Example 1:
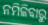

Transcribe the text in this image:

ନମିଳିବାରୁ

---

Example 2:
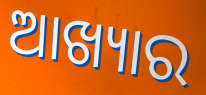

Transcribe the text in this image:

ଆଖ୍ୟାର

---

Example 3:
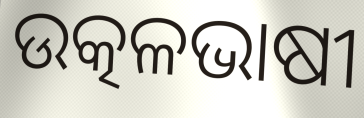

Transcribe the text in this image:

ଉତ୍କଳଭାଷୀ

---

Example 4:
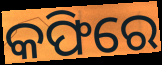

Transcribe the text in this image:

କଫିରେ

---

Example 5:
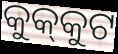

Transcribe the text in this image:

କୁକ୍‍କୁଟ